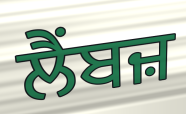
ਲੈਂਬਜ਼